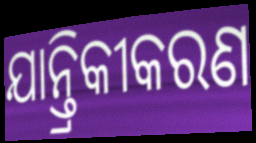
ଯାନ୍ତ୍ରିକୀକରଣ